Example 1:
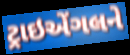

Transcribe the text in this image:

ટ્રાઇએંગલને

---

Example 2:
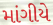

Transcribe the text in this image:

માંગીયે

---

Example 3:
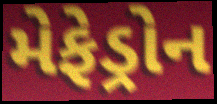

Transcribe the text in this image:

મેફેડ્રોન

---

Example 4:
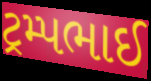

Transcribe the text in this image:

ટ્રમ્પભાઈ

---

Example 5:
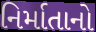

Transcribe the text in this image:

નિર્માતાનો